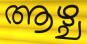
ആഴ്ച